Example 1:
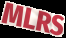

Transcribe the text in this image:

MLRS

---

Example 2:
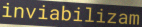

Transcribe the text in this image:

inviabilizam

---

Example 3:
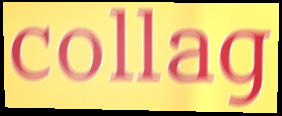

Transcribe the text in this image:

collag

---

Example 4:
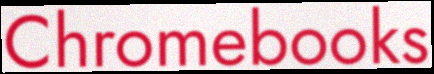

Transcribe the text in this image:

Chromebooks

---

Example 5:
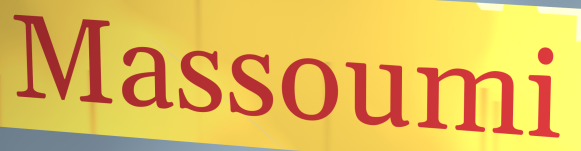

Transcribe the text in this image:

Massoumi